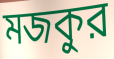
মজকুর